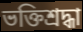
ভক্তিশ্রদ্ধা